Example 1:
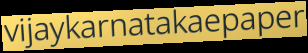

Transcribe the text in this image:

vijaykarnatakaepaper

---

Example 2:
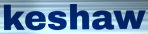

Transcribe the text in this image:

keshaw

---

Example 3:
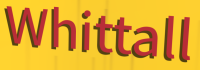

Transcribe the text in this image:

Whittall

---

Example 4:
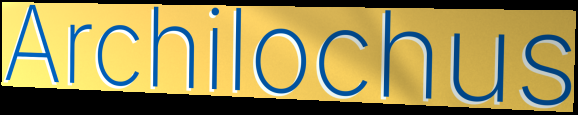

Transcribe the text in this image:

Archilochus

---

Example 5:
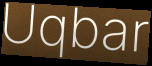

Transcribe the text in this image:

Uqbar